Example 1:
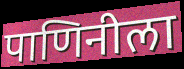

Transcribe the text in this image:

पाणिनीला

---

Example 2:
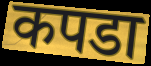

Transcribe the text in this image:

कपडा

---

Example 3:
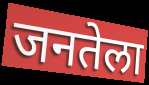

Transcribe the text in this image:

जनतेला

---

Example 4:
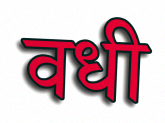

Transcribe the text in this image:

वधी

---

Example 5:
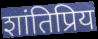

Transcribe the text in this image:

शांतिप्रिय